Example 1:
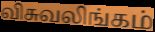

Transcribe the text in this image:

விசுவலிங்கம்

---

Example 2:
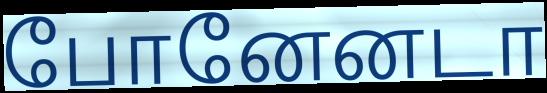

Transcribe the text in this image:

போனேனடா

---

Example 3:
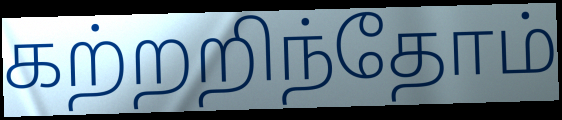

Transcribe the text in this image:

கற்றறிந்தோம்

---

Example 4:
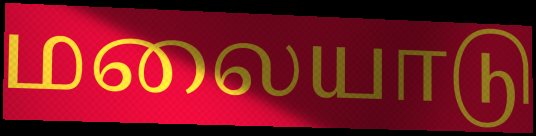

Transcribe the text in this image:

மலையாடு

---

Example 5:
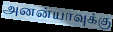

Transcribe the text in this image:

அனன்யாவுக்கு